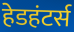
हेडहंटर्स